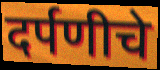
दर्पणीचे